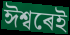
ঈশ্বৰেই